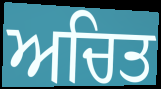
ਅਚਿਤ